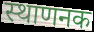
स्थाणनक